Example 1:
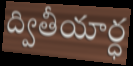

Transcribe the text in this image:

ద్వితీయార్ధ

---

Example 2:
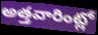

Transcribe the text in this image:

అత్తవారింట్లో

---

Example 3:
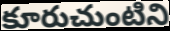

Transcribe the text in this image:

కూరుచుంటిని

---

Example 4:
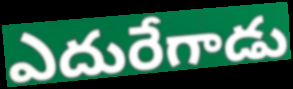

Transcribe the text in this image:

ఎదురేగాడు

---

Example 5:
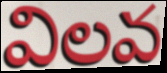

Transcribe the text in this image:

విలవ